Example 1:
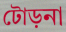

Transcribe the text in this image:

টোড়না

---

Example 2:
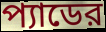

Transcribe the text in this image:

প্যাডের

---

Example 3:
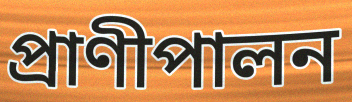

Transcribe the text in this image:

প্রাণীপালন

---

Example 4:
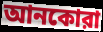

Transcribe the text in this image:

আনকোরা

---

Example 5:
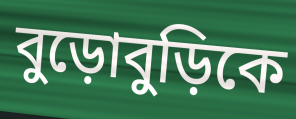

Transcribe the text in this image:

বুড়োবুড়িকে